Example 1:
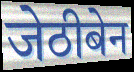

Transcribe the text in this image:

जेठीबेन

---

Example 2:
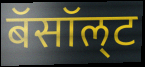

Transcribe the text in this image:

बॅसॉल्ट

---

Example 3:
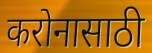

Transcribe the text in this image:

करोनासाठी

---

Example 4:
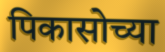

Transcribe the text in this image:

पिकासोच्या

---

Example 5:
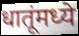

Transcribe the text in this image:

धातूंमध्ये